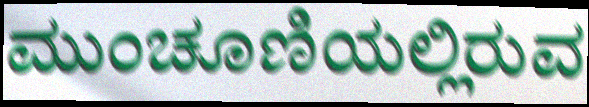
ಮುಂಚೂಣಿಯಲ್ಲಿರುವ